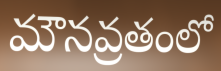
మౌనవ్రతంలో